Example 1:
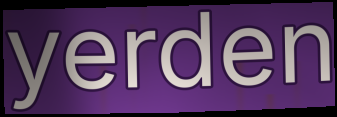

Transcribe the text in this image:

yerden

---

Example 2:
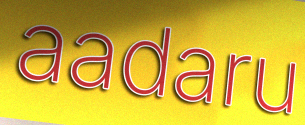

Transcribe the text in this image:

aadaru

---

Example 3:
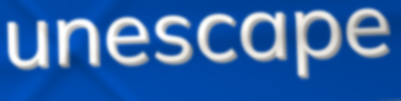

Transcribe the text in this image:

unescape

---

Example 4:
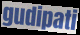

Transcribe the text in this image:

gudipati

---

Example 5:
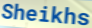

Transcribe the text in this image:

Sheikhs